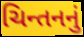
ચિન્તનનું